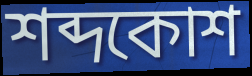
শব্দকোশ